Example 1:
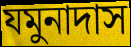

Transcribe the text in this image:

যমুনাদাস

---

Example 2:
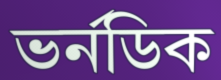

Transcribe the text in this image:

ভর্নডিক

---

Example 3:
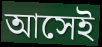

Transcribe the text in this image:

আসেই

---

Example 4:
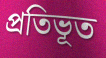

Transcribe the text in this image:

প্রতিভূত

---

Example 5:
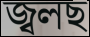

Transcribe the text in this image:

জ্বলছ